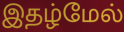
இதழ்மேல்